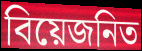
বিয়েজনিত